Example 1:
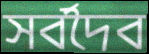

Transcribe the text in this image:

সর্বদৈব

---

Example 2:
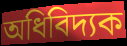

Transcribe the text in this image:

অধিবিদ্যক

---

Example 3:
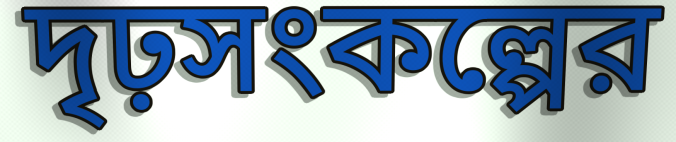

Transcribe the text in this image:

দৃঢ়সংকল্পের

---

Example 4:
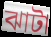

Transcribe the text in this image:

ঝাটা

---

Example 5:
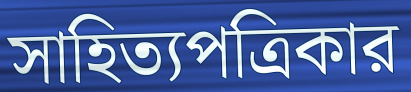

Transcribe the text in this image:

সাহিত্যপত্রিকার